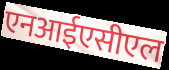
एनआईएसीएल